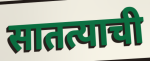
सातत्याची